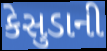
કેસુડાની